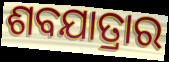
ଶବଯାତ୍ରାର